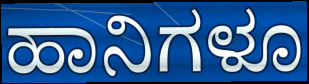
ಹಾನಿಗಳೂ